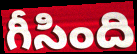
గీసింది